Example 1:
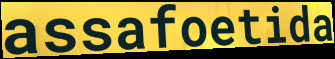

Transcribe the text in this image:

assafoetida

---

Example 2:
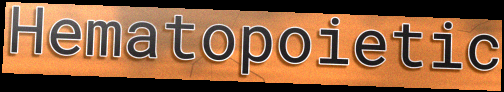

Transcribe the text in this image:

Hematopoietic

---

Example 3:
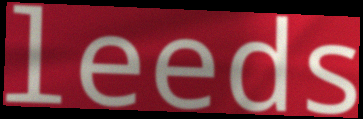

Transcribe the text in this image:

leeds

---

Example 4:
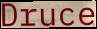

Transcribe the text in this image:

Druce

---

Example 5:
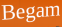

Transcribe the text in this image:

Begam